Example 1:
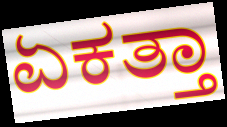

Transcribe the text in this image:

ಏಕತ್ತಾ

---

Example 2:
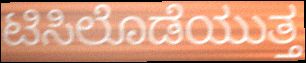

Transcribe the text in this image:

ಟಿಸಿಲೊಡೆಯುತ್ತ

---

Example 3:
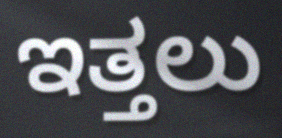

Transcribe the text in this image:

ಇತ್ತಲು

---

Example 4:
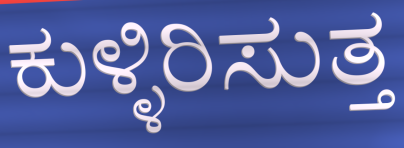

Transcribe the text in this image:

ಕುಳ್ಳಿರಿಸುತ್ತ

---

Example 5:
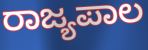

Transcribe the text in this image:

ರಾಜ್ಯಪಾಲ